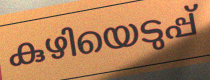
കുഴിയെടുപ്പ്